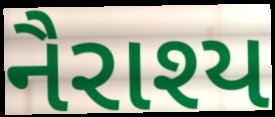
નૈરાશ્ય